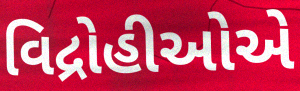
વિદ્રોહીઓએ